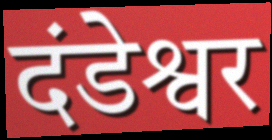
दंडेश्वर